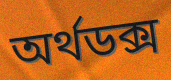
অৰ্থডক্স